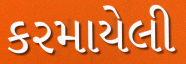
કરમાયેલી